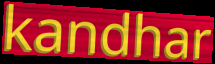
kandhar